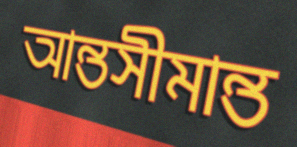
আন্তসীমান্ত